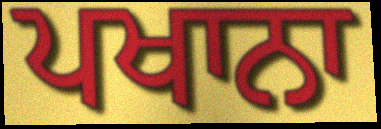
ਪਖਾਨਾ